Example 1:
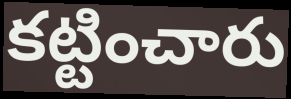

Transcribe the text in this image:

కట్టించారు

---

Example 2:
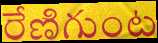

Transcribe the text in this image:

రేణిగుంట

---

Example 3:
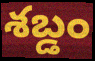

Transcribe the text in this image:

శబ్డం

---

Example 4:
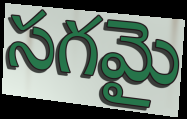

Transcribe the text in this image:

సగమై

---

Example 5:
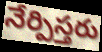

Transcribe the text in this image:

నేర్పిస్తరు